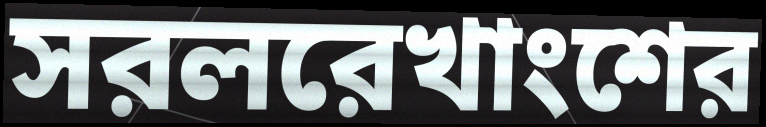
সরলরেখাংশের